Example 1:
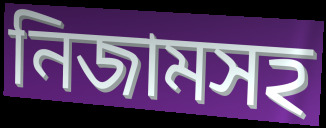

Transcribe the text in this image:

নিজামসহ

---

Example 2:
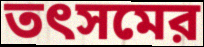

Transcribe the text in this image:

তৎসমের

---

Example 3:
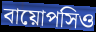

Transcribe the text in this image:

বায়োপসিও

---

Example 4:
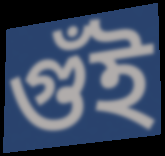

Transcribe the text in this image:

গুঁই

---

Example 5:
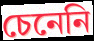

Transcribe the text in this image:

চেনেনি